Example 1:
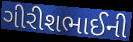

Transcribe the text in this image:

ગીરીશભાઈની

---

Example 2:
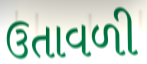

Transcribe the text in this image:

ઉતાવળી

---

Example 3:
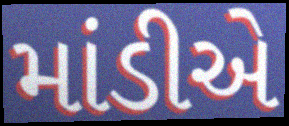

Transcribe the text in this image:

માંડીએ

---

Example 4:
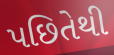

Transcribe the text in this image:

પછિતેથી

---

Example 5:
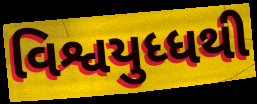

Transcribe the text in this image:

વિશ્વયુધ્ધથી